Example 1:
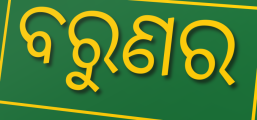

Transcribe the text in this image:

ବରୁଣର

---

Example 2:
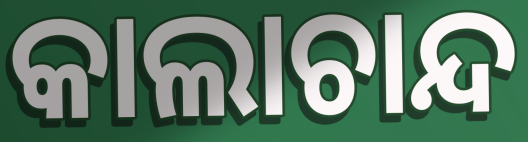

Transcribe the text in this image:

କାଲାଚାନ୍ଦ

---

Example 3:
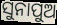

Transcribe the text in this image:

ସୁନାପୁଅ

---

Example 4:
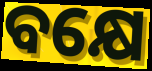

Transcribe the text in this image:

ବକ୍ଷେ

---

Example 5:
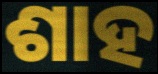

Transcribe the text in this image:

ଶାହ